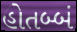
હોતબ્બં